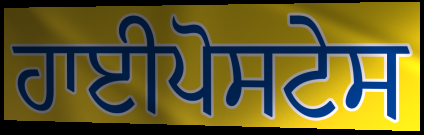
ਹਾਈਪੋਸਟੇਸ